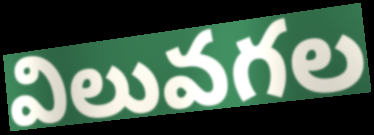
విలువగల